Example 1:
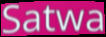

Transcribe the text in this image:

Satwa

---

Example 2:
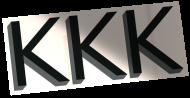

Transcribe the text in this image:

KKK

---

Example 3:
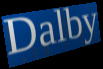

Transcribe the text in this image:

Dalby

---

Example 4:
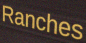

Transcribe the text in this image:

Ranches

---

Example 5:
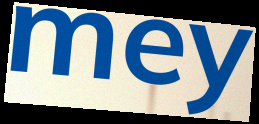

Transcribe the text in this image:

mey